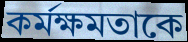
কর্মক্ষমতাকে